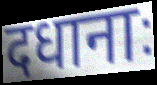
दधानाः